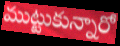
ముట్టుకున్నారో